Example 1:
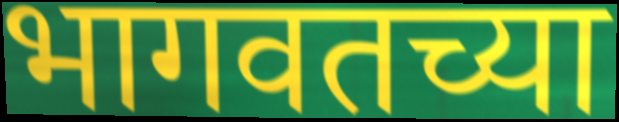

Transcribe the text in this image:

भागवतच्या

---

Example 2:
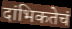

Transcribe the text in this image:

दांभिकतेचं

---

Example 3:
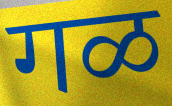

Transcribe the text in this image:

गळ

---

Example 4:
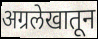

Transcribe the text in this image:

अग्रलेखातून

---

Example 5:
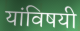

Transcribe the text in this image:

यांविषयी